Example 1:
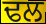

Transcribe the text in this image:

ਢਲ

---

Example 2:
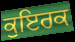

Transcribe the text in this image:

ਕੁਇਰਕ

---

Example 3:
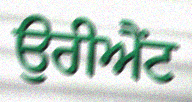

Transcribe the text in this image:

ਉਰੀਐਂਟ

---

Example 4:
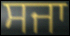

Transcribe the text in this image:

ਸਜਾ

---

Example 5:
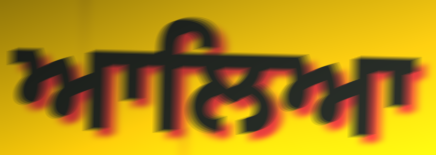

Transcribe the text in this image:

ਆਲਿਆ